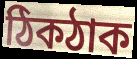
ঠিকঠাক